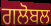
ਗਲੋਬਲ